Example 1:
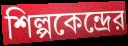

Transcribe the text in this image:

শিল্পকেন্দ্রের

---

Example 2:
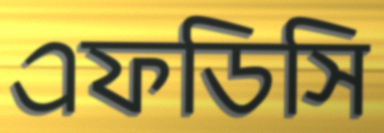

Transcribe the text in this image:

এফডিসি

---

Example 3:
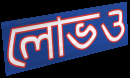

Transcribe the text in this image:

লোভও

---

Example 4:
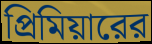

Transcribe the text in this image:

প্রিমিয়ারের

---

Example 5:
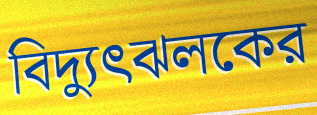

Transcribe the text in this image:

বিদ্যুৎঝলকের